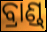
ବ୍ରାଣ୍ଡ୍